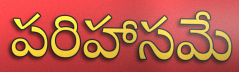
పరిహాసమే